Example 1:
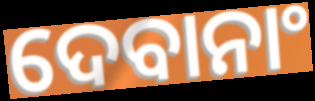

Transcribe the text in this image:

ଦେବାନାଂ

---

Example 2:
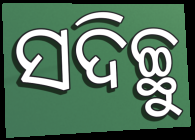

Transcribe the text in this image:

ସଦିଚ୍ଛୁ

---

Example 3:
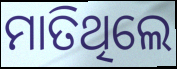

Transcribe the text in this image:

ମାତିଥିଲେ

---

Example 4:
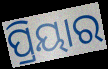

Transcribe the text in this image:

ପ୍ରିୟାର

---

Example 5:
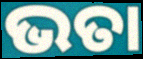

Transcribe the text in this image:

ଭତା